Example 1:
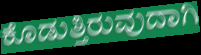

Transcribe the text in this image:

ಕೊಡುತ್ತಿರುವುದಾಗಿ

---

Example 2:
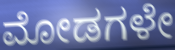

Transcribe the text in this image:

ಮೋಡಗಳೇ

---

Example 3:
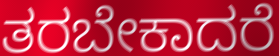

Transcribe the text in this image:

ತರಬೇಕಾದರೆ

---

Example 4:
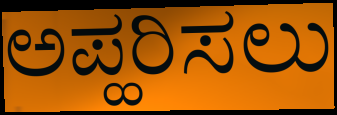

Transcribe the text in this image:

ಅಪ್ಹರಿಸಲು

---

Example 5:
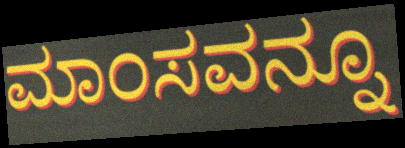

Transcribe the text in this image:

ಮಾಂಸವನ್ನೂ